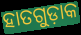
ହାତଗୁଡ଼ାକ